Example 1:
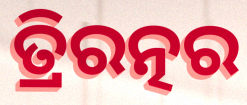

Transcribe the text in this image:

ତ୍ରିରତ୍ନର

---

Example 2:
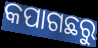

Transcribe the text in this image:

କପାଗଛରୁ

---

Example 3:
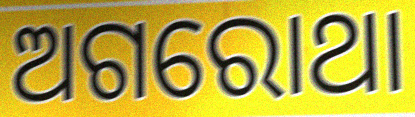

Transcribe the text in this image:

ଅଗରୋଥା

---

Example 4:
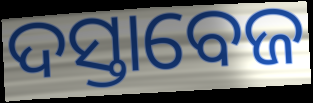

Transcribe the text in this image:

ଦସ୍ତାବେଜ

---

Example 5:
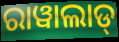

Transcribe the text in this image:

ରାୱାଲାଡ୍